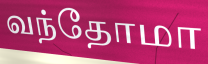
வந்தோமா